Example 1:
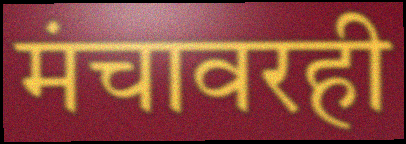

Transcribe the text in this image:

मंचावरही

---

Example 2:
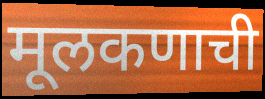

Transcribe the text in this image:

मूलकणाची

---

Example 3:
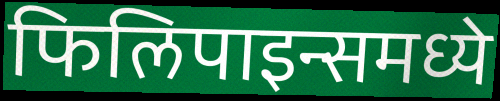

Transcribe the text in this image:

फिलिपाइन्समध्ये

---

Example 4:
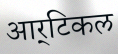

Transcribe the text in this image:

आर्टिकल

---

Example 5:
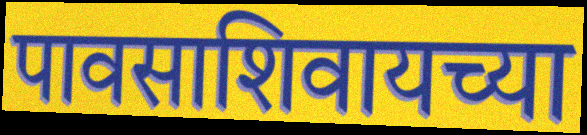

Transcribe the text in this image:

पावसाशिवायच्या